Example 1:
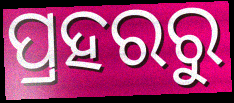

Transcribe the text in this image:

ପ୍ରହରରୁ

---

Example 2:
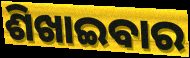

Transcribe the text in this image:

ଶିଖାଇବାର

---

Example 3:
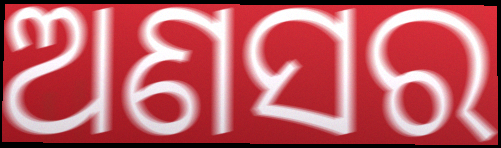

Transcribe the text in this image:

ଅଣସର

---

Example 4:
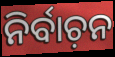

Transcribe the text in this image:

ନିର୍ବାଚ଼ନ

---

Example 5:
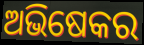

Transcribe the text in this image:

ଅଭିଷେକର